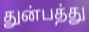
துன்பத்து